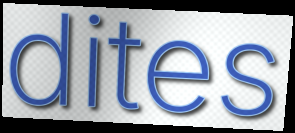
dites